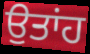
ਉਤਾਂਹ